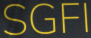
SGFI